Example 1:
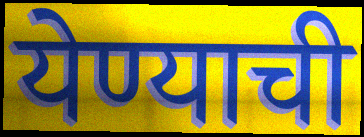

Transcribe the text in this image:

येण्याची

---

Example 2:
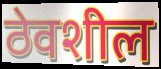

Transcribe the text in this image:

ठेवशील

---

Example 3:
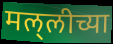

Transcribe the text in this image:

मल्लीच्या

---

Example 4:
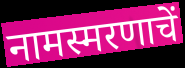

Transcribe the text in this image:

नामस्मरणाचें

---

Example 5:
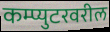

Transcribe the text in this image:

कम्प्युटरवरील